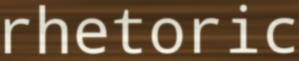
rhetoric